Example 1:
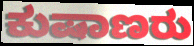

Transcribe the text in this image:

ಕುಷಾಣರು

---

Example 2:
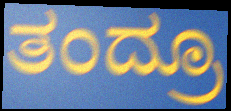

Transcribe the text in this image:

ತಂದ್ರೂ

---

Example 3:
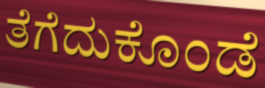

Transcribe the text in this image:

ತೆಗೆದುಕೊಂಡೆ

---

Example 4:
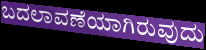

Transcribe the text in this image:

ಬದಲಾವಣೆಯಾಗಿರುವುದು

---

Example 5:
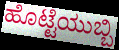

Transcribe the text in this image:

ಹೊಟ್ಟೆಯುಬ್ಬಿ